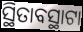
ସ୍ଥିତାବସ୍ଥାଟା